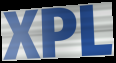
XPL